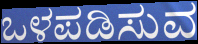
ಒಳಪಡಿಸುವ